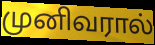
முனிவரால்